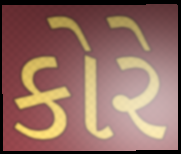
કોરે